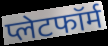
प्लेटफॉर्म